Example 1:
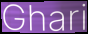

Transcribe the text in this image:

Ghari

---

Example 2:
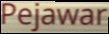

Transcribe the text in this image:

Pejawar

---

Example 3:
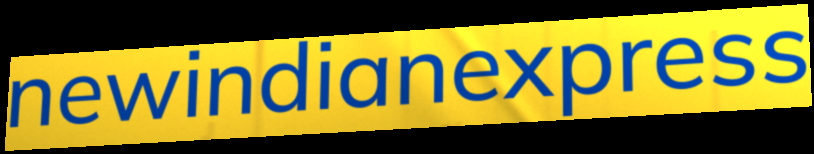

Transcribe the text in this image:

newindianexpress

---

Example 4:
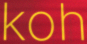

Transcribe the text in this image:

koh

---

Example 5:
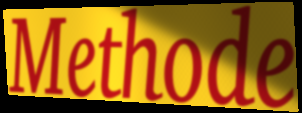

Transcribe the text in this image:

Methode